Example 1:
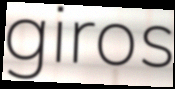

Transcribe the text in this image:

giros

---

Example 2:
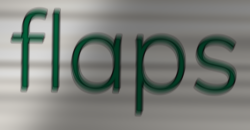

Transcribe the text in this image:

flaps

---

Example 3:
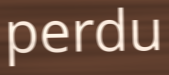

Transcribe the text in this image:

perdu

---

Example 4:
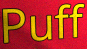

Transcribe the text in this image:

Puff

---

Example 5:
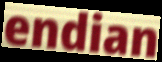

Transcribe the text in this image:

endian